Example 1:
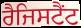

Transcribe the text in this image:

ਰੈਜਿਸਟੈਂਟ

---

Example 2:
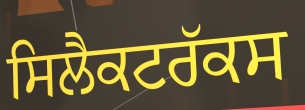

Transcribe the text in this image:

ਸਿਲੈਕਟਰੱਕਸ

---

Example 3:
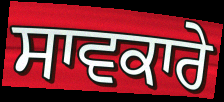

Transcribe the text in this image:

ਸਾਵਕਾਰੇ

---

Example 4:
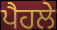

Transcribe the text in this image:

ਪੈਹਲੇ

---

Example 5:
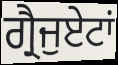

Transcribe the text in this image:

ਗ੍ਰੈਜੁਏਟਾਂ